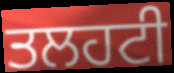
ਤਲਹਟੀ